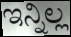
ಇನ್ನಿಲ್ಲ